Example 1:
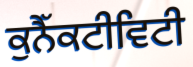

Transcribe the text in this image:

ਕੁਨੈੱਕਟੀਵਿਟੀ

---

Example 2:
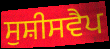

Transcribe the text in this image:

ਸੁਸ਼ੀਸਵੈਪ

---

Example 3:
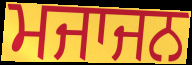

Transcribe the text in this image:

ਮਜਾਜਨ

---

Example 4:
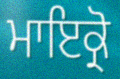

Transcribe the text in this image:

ਮਾਇਕ੍ਰੋ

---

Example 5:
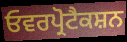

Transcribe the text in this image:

ਓਵਰਪ੍ਰੋਟੈਕਸ਼ਨ